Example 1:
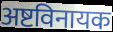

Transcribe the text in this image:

अष्टविनायक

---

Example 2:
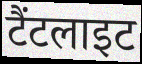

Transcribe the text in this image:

टैंटलाइट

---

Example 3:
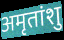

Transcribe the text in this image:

अमृतांशु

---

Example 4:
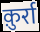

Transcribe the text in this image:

क़ुर्रा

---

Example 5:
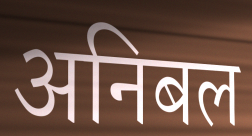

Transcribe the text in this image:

अनिबल